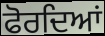
ਫੋਰਦਿਆਂ